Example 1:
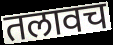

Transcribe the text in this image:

तलावच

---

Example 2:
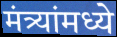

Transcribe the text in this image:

मंत्र्यांमध्ये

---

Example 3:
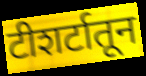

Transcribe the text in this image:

टीशर्टातून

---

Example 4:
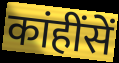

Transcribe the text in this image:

कांहींसें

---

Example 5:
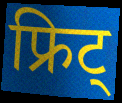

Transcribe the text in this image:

फ्रिट्